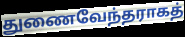
துணைவேந்தராகத்